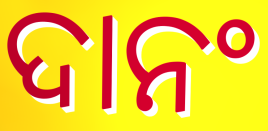
ଦାନଂ